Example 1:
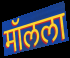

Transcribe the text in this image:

मॉलला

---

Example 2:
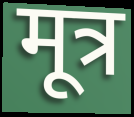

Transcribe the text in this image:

मूत्र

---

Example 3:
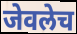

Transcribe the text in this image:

जेवलेच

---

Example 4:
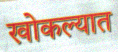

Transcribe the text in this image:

खोकल्यात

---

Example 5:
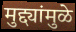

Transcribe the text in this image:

मुद्द्यांमुळे